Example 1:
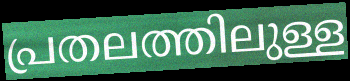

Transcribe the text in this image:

പ്രതലത്തിലുള്ള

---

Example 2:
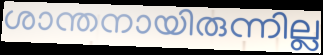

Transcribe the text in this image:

ശാന്തനായിരുന്നില്ല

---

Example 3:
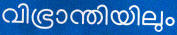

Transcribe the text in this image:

വിഭ്രാന്തിയിലും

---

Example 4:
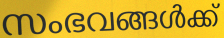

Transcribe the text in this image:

സംഭവങ്ങൾക്ക്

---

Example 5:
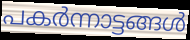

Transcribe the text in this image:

പകർന്നാട്ടങ്ങൾ